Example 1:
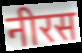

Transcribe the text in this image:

नीरस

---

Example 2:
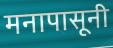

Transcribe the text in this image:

मनापासूनी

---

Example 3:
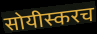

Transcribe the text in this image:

सोयीस्करच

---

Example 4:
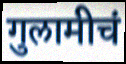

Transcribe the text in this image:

गुलामीचं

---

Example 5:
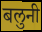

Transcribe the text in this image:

बलुनी